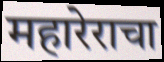
महारेराचा